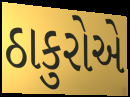
ઠાકુરોએ